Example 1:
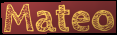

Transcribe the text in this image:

Mateo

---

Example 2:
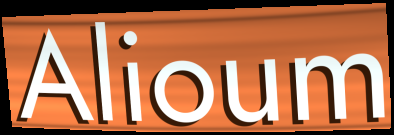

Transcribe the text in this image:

Alioum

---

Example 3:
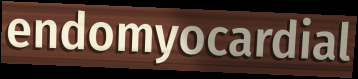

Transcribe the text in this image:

endomyocardial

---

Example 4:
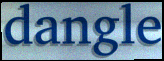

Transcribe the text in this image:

dangle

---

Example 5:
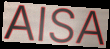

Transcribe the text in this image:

AISA